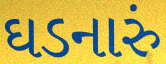
ઘડનારું